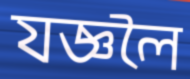
যজ্ঞলৈ